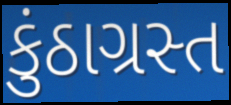
કુંઠાગ્રસ્ત